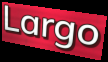
Largo